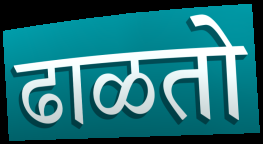
ढाळतो